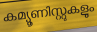
കമ്യൂണിസ്റ്റുകളും